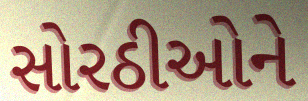
સોરઠીઓને